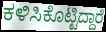
ಕಳಿಸಿಕೊಟ್ಟಿದ್ದಾರೆ